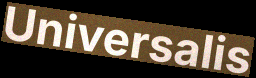
Universalis